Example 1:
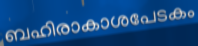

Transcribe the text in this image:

ബഹിരാകാശപേടകം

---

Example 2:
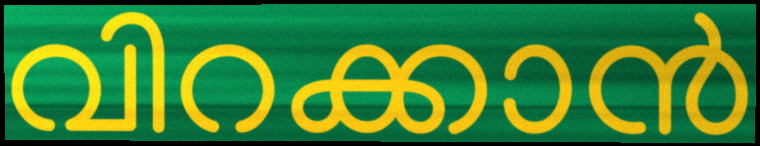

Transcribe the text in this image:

വിറക്കാൻ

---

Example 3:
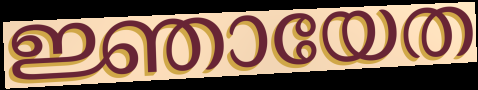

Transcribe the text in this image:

ജ്ഞായേത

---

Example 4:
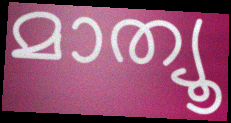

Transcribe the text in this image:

മാത്യൂ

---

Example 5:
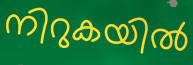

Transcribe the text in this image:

നിറുകയിൽ